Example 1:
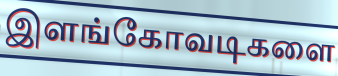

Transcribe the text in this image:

இளங்கோவடிகளை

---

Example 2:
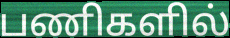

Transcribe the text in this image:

பணிகளில்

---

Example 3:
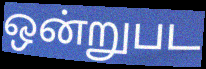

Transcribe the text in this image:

ஒன்றுபட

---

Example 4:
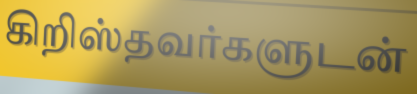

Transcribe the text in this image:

கிறிஸ்தவர்களுடன்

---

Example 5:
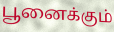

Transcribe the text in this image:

பூனைக்கும்